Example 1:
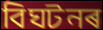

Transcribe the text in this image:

বিঘটনৰ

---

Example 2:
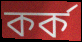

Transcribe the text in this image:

কৰ্ক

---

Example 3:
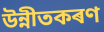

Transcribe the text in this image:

উন্নীতকৰণ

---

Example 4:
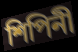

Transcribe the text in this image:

শিপিনী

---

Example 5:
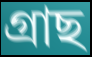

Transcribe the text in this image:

গ্ৰাছ